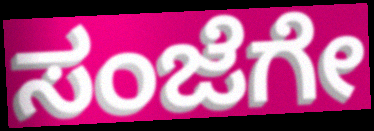
ಸಂಜೆಗೇ